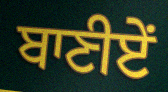
ਬਾਣੀਏਂ